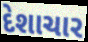
દેશાચાર